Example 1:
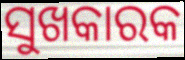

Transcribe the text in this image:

ସୁଖକାରକ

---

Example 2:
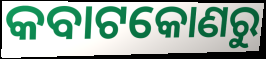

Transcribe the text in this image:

କବାଟକୋଣରୁ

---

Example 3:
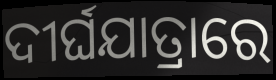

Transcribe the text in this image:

ଦୀର୍ଘଯାତ୍ରାରେ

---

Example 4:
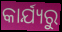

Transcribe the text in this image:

କାର୍ଯ୍ୟରୁ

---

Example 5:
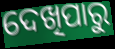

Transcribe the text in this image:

ଦେଖିପାରୁ